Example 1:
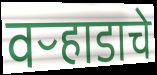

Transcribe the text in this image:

वऱ्हाडाचे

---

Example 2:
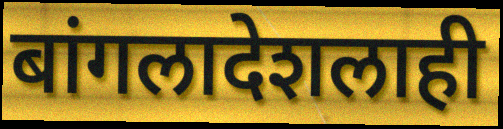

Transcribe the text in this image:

बांगलादेशलाही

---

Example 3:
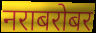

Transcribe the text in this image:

नराबरोबर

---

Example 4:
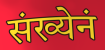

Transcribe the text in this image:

संख्येनं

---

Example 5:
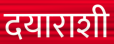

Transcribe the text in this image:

दयाराशी